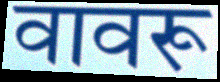
वावरू